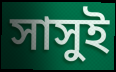
সাসুই